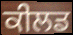
ਕੀਲਡ